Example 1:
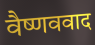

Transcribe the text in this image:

वैष्णववाद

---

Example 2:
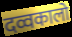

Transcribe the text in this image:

दव्वकालो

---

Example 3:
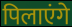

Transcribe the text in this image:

पिलाएंगे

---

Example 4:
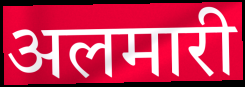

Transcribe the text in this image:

अलमारी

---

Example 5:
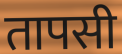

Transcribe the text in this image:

तापसी